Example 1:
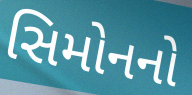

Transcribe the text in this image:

સિમોનનો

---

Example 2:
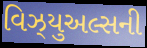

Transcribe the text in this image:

વિઝ્યુઅલ્સની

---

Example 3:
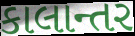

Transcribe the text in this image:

કાલાન્તર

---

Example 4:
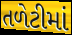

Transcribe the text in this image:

તળેટીમાં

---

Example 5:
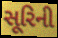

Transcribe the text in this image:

સૂરિની